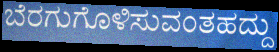
ಬೆರಗುಗೊಳಿಸುವಂತಹದ್ದು